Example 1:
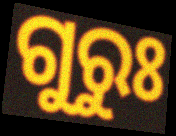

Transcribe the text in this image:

ଗୁରୁଃ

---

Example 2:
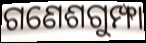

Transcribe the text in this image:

ଗଣେଶଗୁମ୍ଫା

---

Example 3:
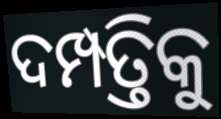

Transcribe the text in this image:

ଦମ୍ପତ୍ତିକୁ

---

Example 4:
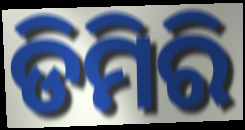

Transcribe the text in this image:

ଡିମିରି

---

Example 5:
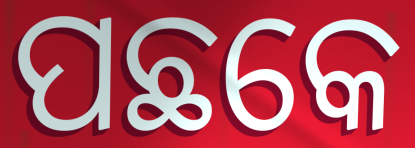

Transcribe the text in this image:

ପଛକେ